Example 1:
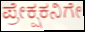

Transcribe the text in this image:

ಪ್ರೇಕ್ಷಕನಿಗೇ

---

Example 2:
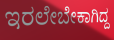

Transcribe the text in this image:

ಇರಲೇಬೇಕಾಗಿದ್ದ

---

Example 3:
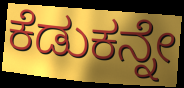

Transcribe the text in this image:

ಕೆಡುಕನ್ನೇ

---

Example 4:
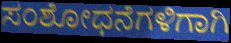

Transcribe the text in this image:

ಸಂಶೋಧನೆಗಳಿಗಾಗಿ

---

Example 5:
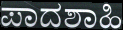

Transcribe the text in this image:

ಪಾದಶಾಹಿ